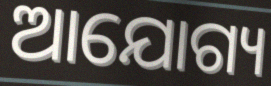
ଆଯୋଗ୍ୟ